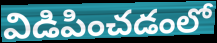
విడిపించడంలో